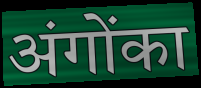
अंगोंका